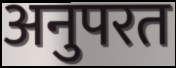
अनुपरत